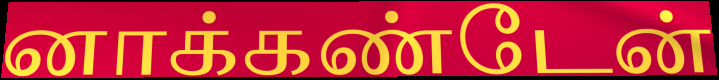
னாக்கண்டேன்